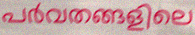
പർവതങ്ങളിലെ